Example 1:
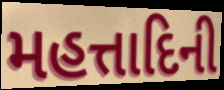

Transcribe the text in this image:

મહત્તાદિની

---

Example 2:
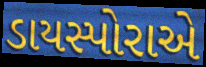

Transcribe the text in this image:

ડાયસ્પોરાએ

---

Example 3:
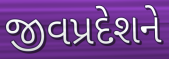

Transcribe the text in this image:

જીવપ્રદેશને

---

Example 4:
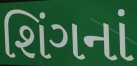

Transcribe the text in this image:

શિંગનાં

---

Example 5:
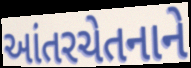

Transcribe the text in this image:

આંતરચેતનાને